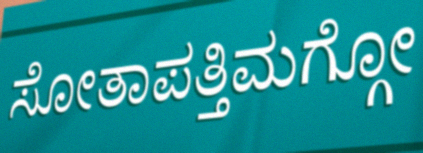
ಸೋತಾಪತ್ತಿಮಗ್ಗೋ